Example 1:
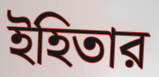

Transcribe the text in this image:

ইহিতার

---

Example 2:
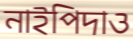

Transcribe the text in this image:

নাইপিদাও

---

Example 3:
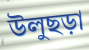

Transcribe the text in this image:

উলুছড়া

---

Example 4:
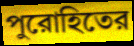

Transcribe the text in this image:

পুরোহিতের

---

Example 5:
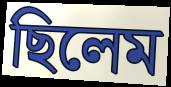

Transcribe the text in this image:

ছিলেম